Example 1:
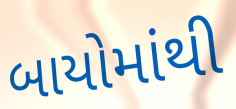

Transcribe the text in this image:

બાયોમાંથી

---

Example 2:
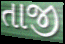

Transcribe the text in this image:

તાજી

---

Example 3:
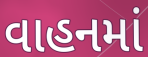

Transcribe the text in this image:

વાહનમાં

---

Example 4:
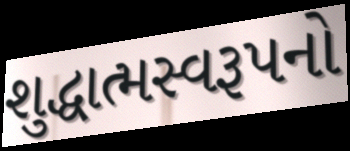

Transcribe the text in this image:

શુદ્ધાત્મસ્વરૂપનો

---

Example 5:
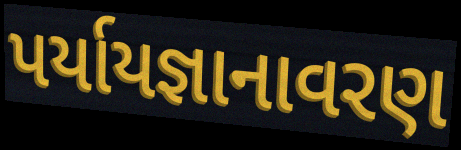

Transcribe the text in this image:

પર્યાયજ્ઞાનાવરણ